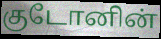
குடோனின்